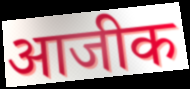
आजीक